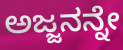
ಅಜ್ಜನನ್ನೇ